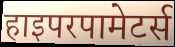
हाइपरपामेटर्स